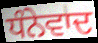
ਧੰਨੇਵਾਦ